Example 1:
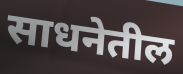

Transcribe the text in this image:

साधनेतील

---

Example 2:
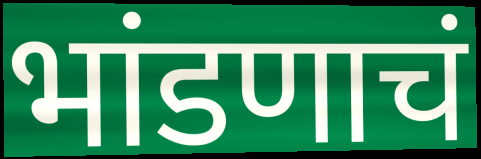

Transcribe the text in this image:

भांडणाचं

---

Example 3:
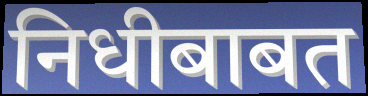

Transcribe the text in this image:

निधीबाबत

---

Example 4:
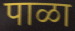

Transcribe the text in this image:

पाळा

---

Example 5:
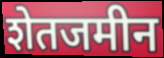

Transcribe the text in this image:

शेतजमीन